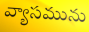
వ్యాసమును